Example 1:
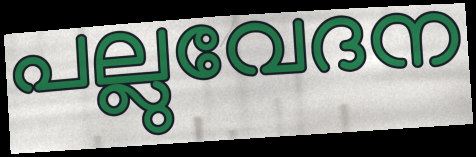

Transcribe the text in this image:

പല്ലുവേദന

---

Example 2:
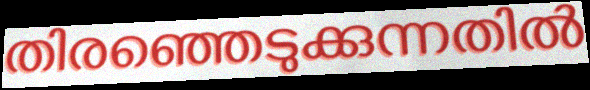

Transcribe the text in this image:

തിരഞ്ഞെടുക്കുന്നതിൽ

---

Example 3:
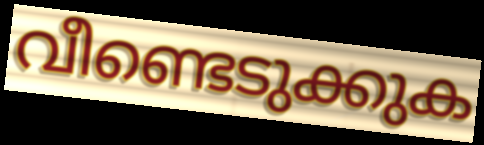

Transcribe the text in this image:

വീണ്ടെടുക്കുക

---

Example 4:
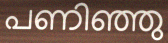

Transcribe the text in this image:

പണിഞ്ഞു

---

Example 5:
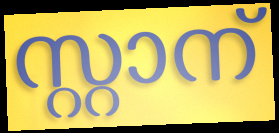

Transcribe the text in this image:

സ്റ്റാന്